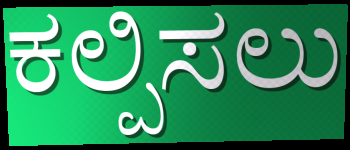
ಕಲ್ಪಿಸಲು